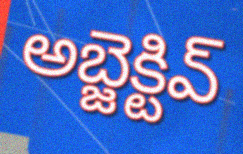
అబ్జెక్టివ్